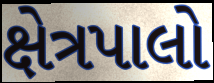
ક્ષેત્રપાલો